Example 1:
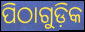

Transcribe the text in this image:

ପିଠାଗୁଡ଼ିକ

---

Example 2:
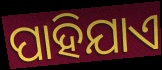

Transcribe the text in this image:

ପାହିଯାଏ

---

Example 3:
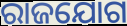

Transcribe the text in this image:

ରାଜଯୋଗ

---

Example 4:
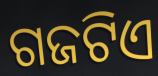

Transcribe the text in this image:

ଗଜଟିଏ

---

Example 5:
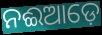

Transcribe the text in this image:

ନଈଆଡ଼େ